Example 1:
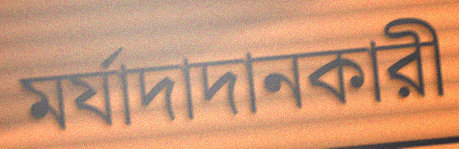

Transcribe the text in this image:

মর্যাদাদানকারী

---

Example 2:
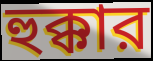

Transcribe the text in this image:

হুক্কার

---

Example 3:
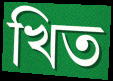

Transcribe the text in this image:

খিত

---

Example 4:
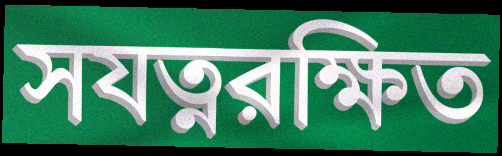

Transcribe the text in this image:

সযত্নরক্ষিত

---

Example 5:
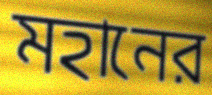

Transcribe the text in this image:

মহানের